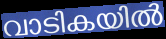
വാടികയിൽ